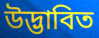
উদ্ভাবিত